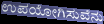
ಉಪಯೋಗಿಸುವೆನು